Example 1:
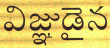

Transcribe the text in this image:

విజ్ఞుడైన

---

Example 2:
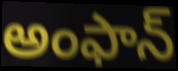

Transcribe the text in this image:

అంఫాన్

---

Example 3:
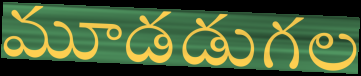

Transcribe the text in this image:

మూడడుగల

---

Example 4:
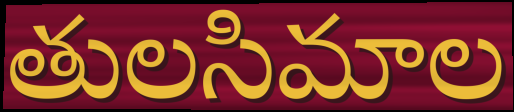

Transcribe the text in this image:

తులసిమాల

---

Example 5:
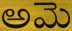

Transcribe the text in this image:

అమె